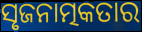
ସୃଜନାତ୍ମକତାର